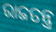
ରାଜତନ୍ତ୍ର